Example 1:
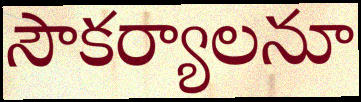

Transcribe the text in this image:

సౌకర్యాలనూ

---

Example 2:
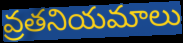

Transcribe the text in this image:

వ్రతనియమాలు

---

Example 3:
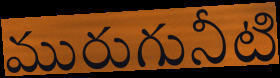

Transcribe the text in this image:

మురుగునీటి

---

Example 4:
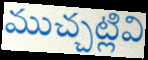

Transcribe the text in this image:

ముచ్చట్లివి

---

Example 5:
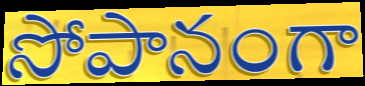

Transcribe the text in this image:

సోపానంగా